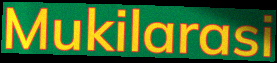
Mukilarasi